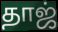
தாஜ்